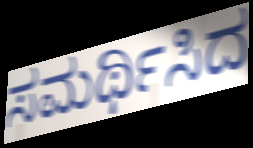
ಸಮರ್ಥಿಸಿದ